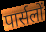
पार्सलों